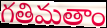
గతిమతాం